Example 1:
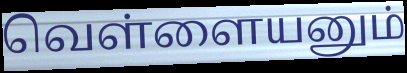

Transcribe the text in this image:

வெள்ளையனும்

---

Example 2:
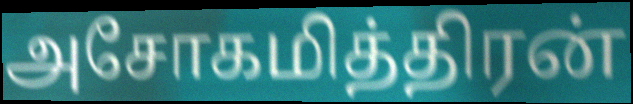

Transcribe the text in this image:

அசோகமித்திரன்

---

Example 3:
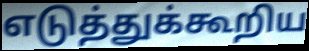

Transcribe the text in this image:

எடுத்துக்கூறிய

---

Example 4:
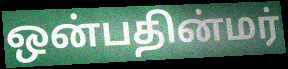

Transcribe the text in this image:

ஒன்பதின்மர்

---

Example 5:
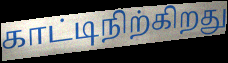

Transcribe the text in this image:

காட்டிநிற்கிறது